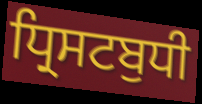
ਧ੍ਰਿਸਟਬੁਧੀ